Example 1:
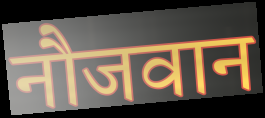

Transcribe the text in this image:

नौजवान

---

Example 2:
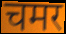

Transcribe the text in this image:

चमर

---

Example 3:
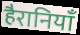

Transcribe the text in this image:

हैरानियाँ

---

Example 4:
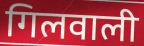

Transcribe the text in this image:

गिलवाली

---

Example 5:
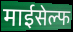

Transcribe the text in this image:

माईसेल्फ